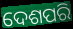
ଦେଶପରି